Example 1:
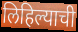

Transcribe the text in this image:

लिहिल्याची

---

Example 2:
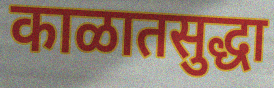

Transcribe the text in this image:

काळातसुद्धा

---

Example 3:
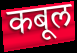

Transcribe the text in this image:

कबूल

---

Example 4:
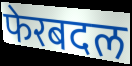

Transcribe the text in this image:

फेरबदल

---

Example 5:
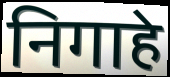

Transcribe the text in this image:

निगाहे